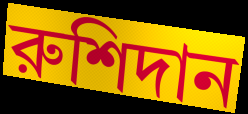
রুশিদান